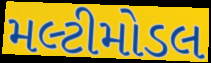
મલ્ટીમોડલ